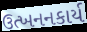
ઉત્ખનનકાર્ય